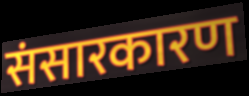
संसारकारण